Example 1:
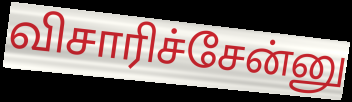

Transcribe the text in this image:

விசாரிச்சேன்னு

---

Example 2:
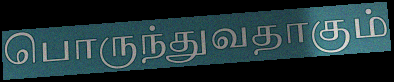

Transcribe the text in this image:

பொருந்துவதாகும்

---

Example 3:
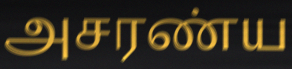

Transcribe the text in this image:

அசரண்ய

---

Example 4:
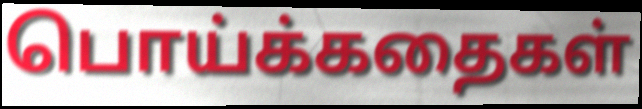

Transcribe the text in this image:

பொய்க்கதைகள்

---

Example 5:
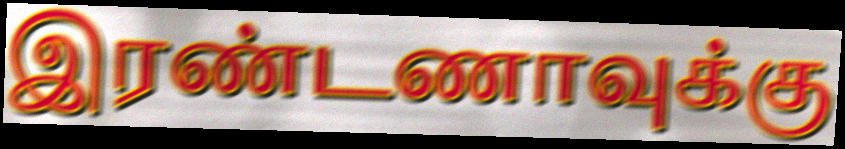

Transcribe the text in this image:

இரண்டணாவுக்கு